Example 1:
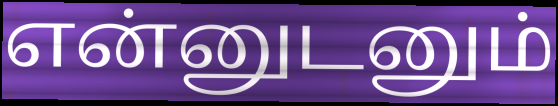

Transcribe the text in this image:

என்னுடனும்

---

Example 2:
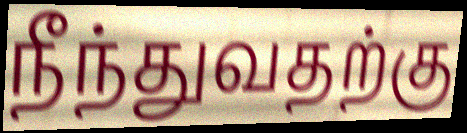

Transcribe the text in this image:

நீந்துவதற்கு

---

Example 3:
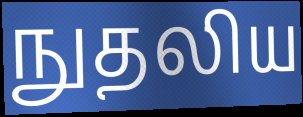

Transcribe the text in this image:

நுதலிய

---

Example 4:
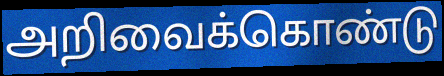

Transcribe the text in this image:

அறிவைக்கொண்டு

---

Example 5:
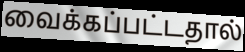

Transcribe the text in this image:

வைக்கப்பட்டதால்